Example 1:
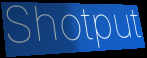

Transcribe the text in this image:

Shotput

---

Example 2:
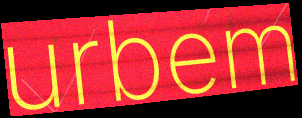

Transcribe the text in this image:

urbem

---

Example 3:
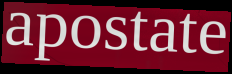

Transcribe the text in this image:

apostate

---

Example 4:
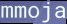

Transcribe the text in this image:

mmoja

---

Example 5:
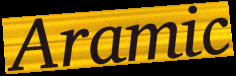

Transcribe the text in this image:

Aramic